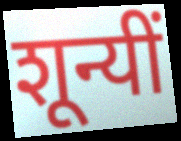
शून्यीं